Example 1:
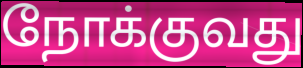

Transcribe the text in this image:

நோக்குவது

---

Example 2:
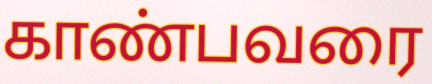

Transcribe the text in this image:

காண்பவரை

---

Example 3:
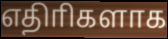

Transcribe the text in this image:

எதிரிகளாக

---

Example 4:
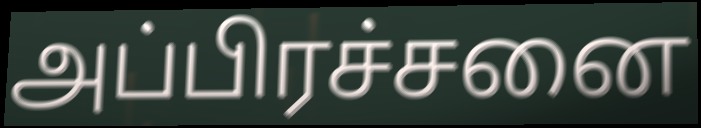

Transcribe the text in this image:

அப்பிரச்சனை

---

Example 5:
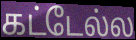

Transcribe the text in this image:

கட்டேல்ல